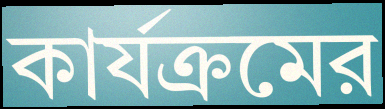
কার্যক্রমের